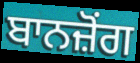
ਬਾਨਜ਼ੋਂਗ